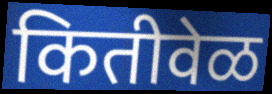
कितीवेळ